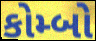
કોમ્બો